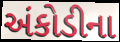
અંકોડીના